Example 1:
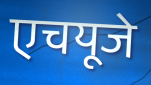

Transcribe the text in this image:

एचयूजे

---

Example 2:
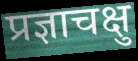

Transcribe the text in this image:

प्रज्ञाचक्षु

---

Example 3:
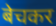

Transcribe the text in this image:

बेचकर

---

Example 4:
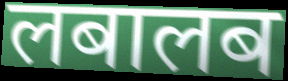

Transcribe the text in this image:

लबालब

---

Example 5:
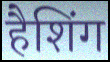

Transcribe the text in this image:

हैशिंग